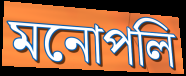
মনোপলি